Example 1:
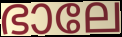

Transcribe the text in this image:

ഭാലേ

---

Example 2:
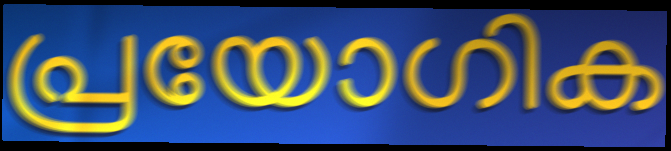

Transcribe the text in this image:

പ്രയോഗിക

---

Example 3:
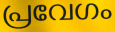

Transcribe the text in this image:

പ്രവേഗം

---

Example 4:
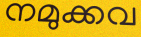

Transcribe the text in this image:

നമുക്കവ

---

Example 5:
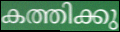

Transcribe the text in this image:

കത്തിക്കു